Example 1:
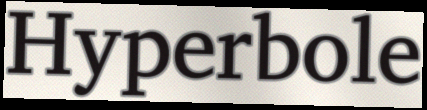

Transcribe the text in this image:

Hyperbole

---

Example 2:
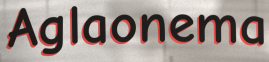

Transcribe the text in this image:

Aglaonema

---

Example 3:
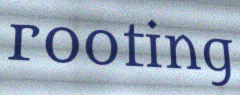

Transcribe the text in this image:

rooting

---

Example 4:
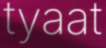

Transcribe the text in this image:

tyaat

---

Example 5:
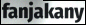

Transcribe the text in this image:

fanjakany